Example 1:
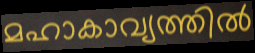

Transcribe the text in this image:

മഹാകാവ്യത്തിൽ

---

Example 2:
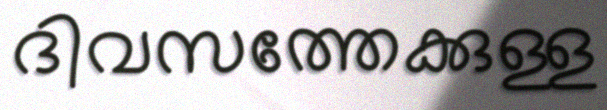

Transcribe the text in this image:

ദിവസത്തേക്കുള്ള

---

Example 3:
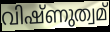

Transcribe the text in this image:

വിഷ്ണുത്വമ്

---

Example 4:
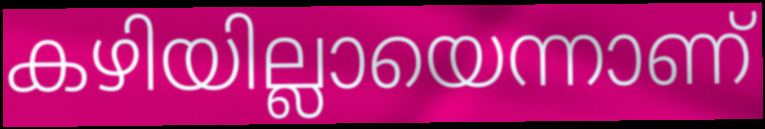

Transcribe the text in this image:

കഴിയില്ലായെന്നാണ്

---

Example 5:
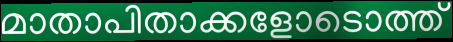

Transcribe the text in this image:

മാതാപിതാക്കളോടൊത്ത്